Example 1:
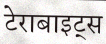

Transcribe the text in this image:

टेराबाइट्स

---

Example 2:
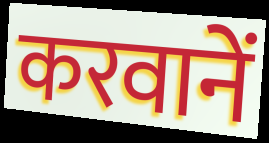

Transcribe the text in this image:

करवानें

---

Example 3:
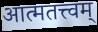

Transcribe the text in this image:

आत्मतत्त्वम्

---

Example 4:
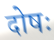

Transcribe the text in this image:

दोषः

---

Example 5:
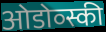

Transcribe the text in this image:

ओडोव्स्की